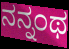
ನನ್ನಂಥ